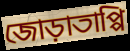
জোড়াতাপ্পি